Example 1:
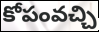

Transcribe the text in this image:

కోపంవచ్చి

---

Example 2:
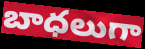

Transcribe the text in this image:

బాధలుగా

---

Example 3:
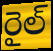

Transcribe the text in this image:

రైల్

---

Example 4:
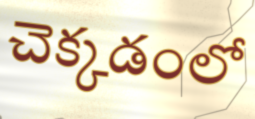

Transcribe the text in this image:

చెక్కడంలో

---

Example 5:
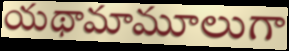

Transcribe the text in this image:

యథామామూలుగా